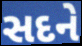
સદને